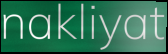
nakliyat